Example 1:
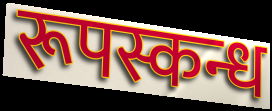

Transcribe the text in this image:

रूपस्कन्ध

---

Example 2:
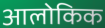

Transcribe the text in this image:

आलोकिक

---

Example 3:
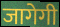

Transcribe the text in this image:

जागेगी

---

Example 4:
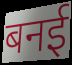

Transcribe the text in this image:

बनई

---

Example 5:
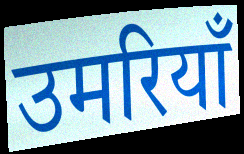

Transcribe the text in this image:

उमरियाँ